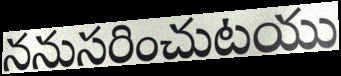
ననుసరించుటయు